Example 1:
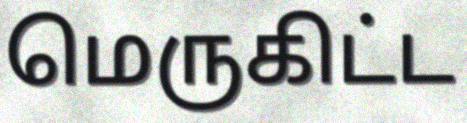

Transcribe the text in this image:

மெருகிட்ட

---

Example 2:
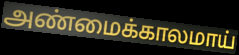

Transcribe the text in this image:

அண்மைக்காலமாய்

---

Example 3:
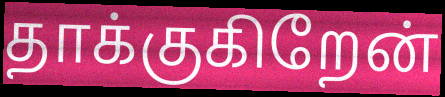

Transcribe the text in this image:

தாக்குகிறேன்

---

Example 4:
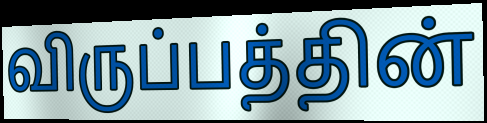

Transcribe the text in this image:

விருப்பத்தின்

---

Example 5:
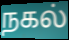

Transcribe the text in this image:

நகல்